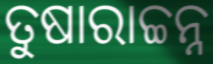
ତୁଷାରାଚ୍ଚନ୍ନ